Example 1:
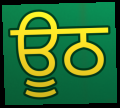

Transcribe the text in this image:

ਊਠ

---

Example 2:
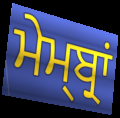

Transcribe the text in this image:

ਮੇਮ੍ਬ੍ਰਾਂ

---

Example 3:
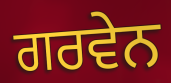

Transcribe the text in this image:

ਗਰਵੇਨ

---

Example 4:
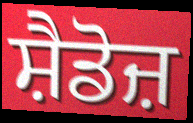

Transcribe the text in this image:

ਸ਼ੈਡੋਜ਼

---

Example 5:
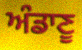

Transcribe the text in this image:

ਅੰਡਾਣੂ